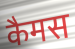
कैमस